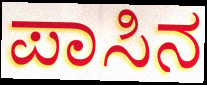
ಪಾಸಿನ